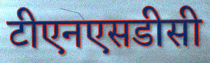
टीएनएसडीसी